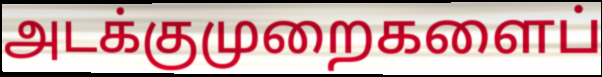
அடக்குமுறைகளைப்